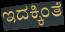
ಇದಕ್ಕಿಂತೆ